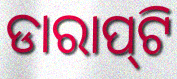
ଡାରାପ୍‌ଟି